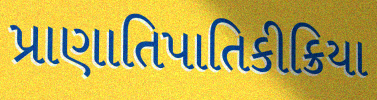
પ્રાણાતિપાતિકીક્રિયા